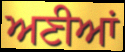
ਅਣੀਆਂ